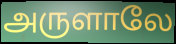
அருளாலே